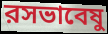
রসভাবেষু